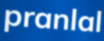
pranlal